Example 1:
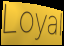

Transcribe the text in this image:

Loyal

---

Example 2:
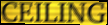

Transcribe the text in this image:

CEILING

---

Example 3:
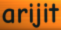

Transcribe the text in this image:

arijit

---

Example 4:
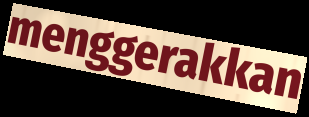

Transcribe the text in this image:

menggerakkan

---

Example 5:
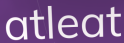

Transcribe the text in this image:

atleat